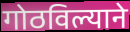
गोठविल्याने